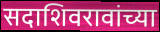
सदाशिवरावांच्या